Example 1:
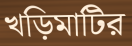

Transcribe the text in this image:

খড়িমাটির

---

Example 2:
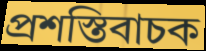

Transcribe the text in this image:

প্রশস্তিবাচক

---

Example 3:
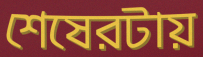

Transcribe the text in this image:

শেষেরটায়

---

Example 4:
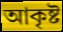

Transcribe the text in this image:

আকৃষ্ট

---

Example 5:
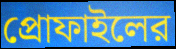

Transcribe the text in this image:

প্রোফাইলের